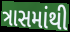
ત્રાસમાંથી